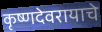
कृष्णदेवरायाचे